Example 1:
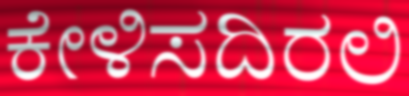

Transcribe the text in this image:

ಕೇಳಿಸದಿರಲಿ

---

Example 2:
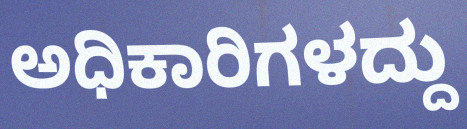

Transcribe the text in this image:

ಅಧಿಕಾರಿಗಳದ್ದು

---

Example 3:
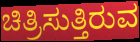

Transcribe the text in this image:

ಚಿತ್ರಿಸುತ್ತಿರುವ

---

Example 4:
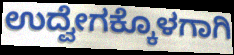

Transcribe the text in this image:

ಉದ್ವೇಗಕ್ಕೊಳಗಾಗಿ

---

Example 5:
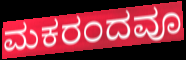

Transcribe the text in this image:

ಮಕರಂದವೂ